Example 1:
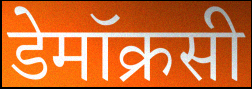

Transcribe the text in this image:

डेमॉक्रसी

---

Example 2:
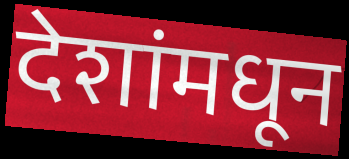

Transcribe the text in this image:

देशांमधून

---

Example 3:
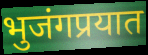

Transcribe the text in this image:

भुजंगप्रयात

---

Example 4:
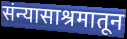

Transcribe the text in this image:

संन्यासाश्रमातून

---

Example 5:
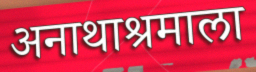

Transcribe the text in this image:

अनाथाश्रमाला